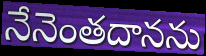
నేనెంతదానను